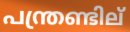
പന്ത്രണ്ടില്